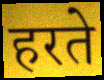
हरते